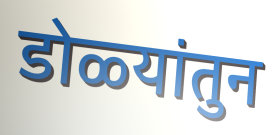
डोळ्यांतुन